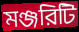
মঞ্জরিটি